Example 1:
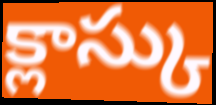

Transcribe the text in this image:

క్లాస్కు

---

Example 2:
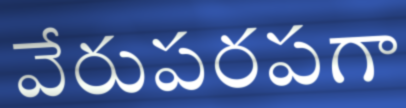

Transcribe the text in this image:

వేరుపరపగా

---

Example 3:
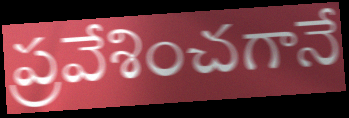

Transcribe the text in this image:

ప్రవేశించగానే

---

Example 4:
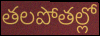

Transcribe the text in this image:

తలపోతల్లో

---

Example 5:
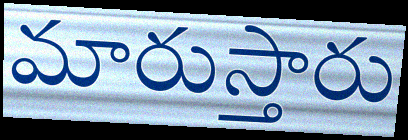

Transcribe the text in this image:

మారుస్తారు